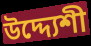
উদ্দ্যেশী